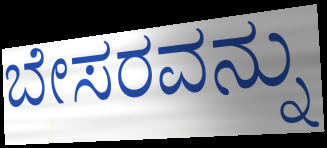
ಬೇಸರವನ್ನು